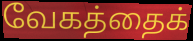
வேகத்தைக்